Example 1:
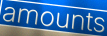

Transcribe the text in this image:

amounts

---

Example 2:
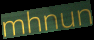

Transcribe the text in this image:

mhnun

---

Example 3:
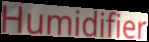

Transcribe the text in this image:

Humidifier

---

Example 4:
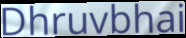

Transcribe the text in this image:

Dhruvbhai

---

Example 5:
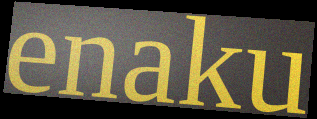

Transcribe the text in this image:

enaku